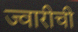
ज्वारीची